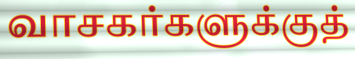
வாசகர்களுக்குத்